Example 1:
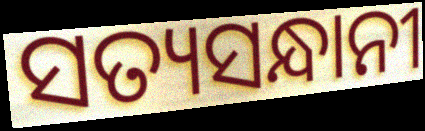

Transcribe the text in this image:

ସତ୍ୟସନ୍ଧାନୀ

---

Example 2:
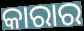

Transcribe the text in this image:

କାରାର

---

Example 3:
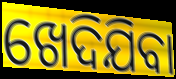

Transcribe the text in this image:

ଖେଦିଯିବା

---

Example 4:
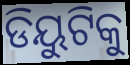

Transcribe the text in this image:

ଡିୟୁଟିକୁ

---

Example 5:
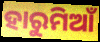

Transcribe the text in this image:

ହାରୁମିଆଁ